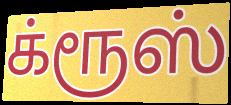
க்ரூஸ்